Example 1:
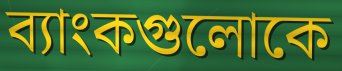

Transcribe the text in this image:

ব্যাংকগুলোকে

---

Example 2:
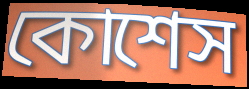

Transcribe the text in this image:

কোশেস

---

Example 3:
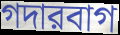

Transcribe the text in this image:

গদারবাগ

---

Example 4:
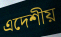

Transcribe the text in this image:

এদেশীয়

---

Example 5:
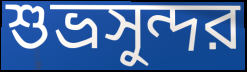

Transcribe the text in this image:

শুভ্রসুন্দর